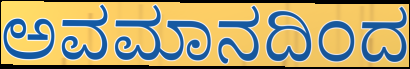
ಅವಮಾನದಿಂದ